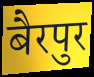
बैरपुर